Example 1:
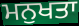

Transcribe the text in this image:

ਮਨੁਖਤਾ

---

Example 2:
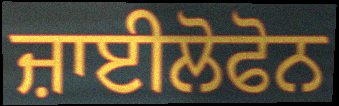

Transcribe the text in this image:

ਜ਼ਾਈਲੋਫੋਨ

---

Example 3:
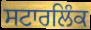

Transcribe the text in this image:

ਸਟਾਰਲਿੰਕ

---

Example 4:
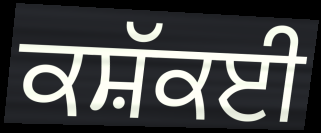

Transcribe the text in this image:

ਕਸ਼ੱਕਈ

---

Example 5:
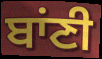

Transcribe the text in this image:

ਬਾਂਣੀ